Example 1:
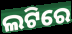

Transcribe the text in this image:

ଲଟିରେ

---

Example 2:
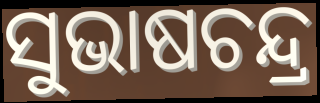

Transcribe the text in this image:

ସୁଭାଷଚନ୍ଦ୍ର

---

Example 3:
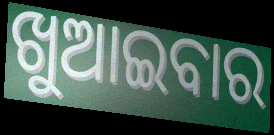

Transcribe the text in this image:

ଖୁଆଇବାର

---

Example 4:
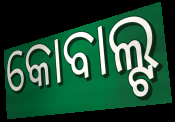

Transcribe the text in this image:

କୋବାଲ୍ଟ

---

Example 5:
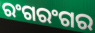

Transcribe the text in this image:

ରଂଗରଂଗର